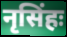
नृसिंहः